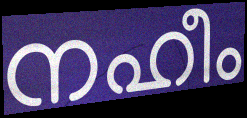
നഹീം